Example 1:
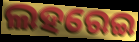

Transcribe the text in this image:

ଲହରେଇ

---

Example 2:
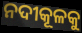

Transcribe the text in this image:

ନଦୀକୂଳକୁ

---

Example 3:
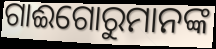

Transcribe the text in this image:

ଗାଈଗୋରୁମାନଙ୍କ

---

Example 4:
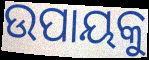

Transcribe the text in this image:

ଉପାୟକୁ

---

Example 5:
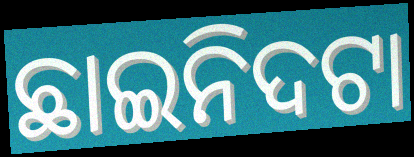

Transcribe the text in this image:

ଛାଇନିଦଟା